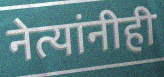
नेत्यांनीही